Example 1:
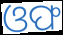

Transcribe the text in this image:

ଓଫ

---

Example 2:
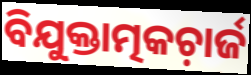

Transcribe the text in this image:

ବିଯୁକ୍ତାତ୍ମକଚ଼ାର୍ଜ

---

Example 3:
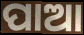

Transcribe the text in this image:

ପାଆ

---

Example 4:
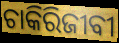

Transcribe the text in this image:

ଚାକିରିଜୀବୀ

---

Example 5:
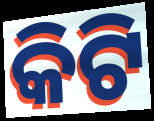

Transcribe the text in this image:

କିଟି